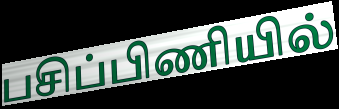
பசிப்பிணியில்